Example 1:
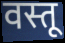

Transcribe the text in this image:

वस्तू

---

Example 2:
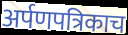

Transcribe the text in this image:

अर्पणपत्रिकाच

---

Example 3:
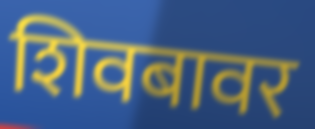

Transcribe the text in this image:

शिवबावर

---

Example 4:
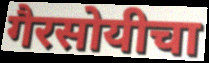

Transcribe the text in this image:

गैरसोयीचा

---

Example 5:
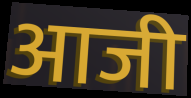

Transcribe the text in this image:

आजी